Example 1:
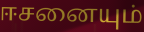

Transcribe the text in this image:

ஈசனையும்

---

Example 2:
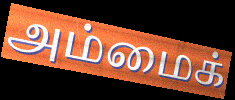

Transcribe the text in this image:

அம்மைக்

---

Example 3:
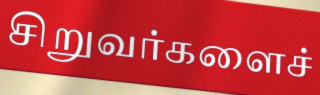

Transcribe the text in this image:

சிறுவர்களைச்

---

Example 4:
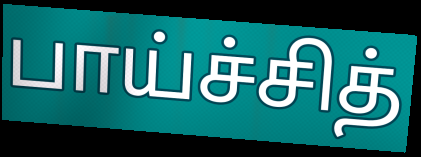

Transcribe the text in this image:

பாய்ச்சித்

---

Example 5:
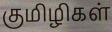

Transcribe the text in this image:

குமிழிகள்